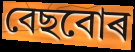
বেছবোৰ